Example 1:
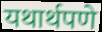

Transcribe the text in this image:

यथार्थपणे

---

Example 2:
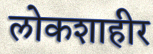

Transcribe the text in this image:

लोकशाहीर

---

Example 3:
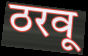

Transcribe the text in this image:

ठरवू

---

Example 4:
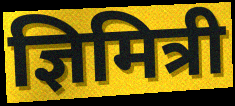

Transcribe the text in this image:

ज्ञिमित्री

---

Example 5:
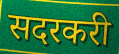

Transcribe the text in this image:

सदरकरी